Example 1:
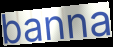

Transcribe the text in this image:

banna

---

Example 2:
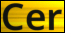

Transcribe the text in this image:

Cer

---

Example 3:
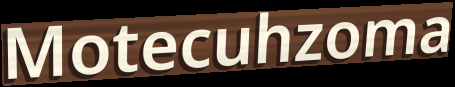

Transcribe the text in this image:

Motecuhzoma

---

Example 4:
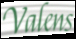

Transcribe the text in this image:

Valens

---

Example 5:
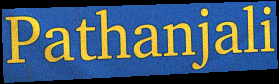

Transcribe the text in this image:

Pathanjali